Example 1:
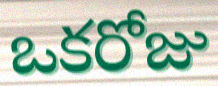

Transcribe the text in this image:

ఒకరోజు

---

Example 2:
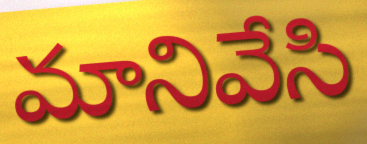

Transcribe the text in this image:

మానివేసి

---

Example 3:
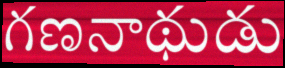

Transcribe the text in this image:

గణనాథుడు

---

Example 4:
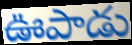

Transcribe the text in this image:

ఊపాడు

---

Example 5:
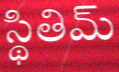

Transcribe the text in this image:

స్థితిమ్